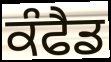
ਕੰਫੈਡ